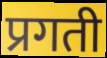
प्रगती